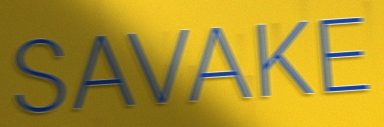
SAVAKE